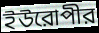
ইউরোপীর